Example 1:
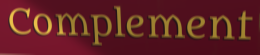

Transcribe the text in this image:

Complement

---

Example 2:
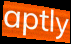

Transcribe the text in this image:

aptly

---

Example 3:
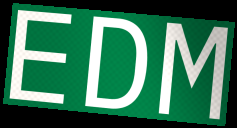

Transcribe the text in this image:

EDM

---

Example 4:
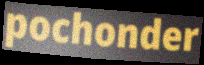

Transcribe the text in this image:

pochonder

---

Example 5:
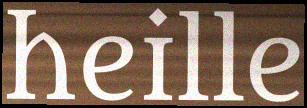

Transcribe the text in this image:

heille